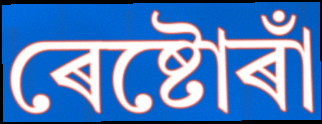
ৰেষ্টোৰাঁ